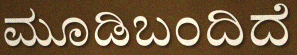
ಮೂಡಿಬಂದಿದೆ